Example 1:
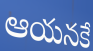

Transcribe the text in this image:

ఆయనకే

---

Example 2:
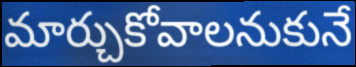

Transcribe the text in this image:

మార్చుకోవాలనుకునే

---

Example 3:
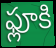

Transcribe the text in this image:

ఫ్లూకి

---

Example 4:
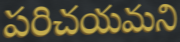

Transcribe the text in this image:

పరిచయమని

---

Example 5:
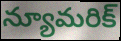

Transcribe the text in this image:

న్యూమరిక్